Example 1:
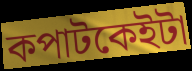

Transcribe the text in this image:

কপাটকেইটা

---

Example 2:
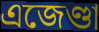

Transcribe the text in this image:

এজেণ্ডা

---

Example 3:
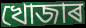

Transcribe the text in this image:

খোজাৰ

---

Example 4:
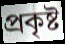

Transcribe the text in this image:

প্ৰকৃষ্ট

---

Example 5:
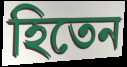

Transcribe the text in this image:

হিতেন